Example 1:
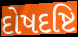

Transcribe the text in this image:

દોષદષ્ટિ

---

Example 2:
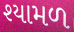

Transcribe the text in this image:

શ્યામળ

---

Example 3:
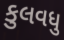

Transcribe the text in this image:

કુલવધુ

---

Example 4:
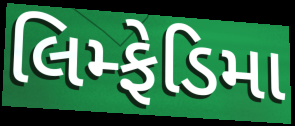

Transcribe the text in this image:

લિમ્ફેડિમા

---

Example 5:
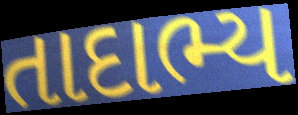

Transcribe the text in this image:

તાદાભ્ય